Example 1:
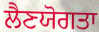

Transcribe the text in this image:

ਲੈਣਯੋਗਤਾ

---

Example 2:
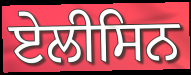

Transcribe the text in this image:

ਏਲੀਸਿਨ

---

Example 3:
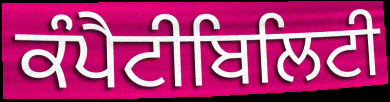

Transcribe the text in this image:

ਕੰਪੈਟੀਬਿਲਿਟੀ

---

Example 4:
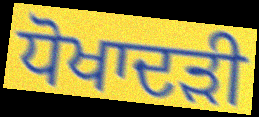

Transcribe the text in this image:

ਧੋਖਾਦੜੀ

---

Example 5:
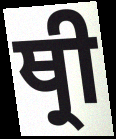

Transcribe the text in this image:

ਥ੍ਰੀ